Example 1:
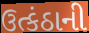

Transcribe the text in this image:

ઉત્કંઠાની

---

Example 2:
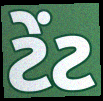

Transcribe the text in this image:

ટેંટ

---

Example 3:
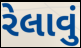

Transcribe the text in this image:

રેલાવું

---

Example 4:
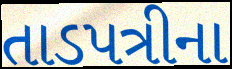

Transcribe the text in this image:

તાડપત્રીના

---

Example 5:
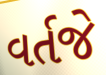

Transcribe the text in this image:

વર્તજે